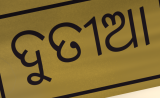
ଦୁତୀଆ